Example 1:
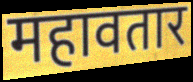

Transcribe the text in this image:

महावतार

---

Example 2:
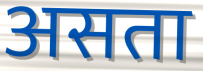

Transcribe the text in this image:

असता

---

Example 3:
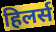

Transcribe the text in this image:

हिलर्स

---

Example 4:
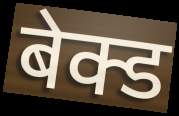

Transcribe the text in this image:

बेक्ड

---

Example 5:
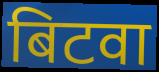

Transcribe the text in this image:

बिटवा